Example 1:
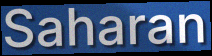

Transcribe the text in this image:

Saharan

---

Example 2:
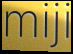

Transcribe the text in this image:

miji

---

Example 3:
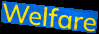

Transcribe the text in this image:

Welfare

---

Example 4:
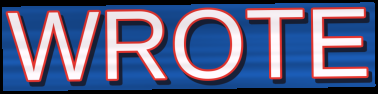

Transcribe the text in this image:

WROTE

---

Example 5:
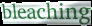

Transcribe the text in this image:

bleaching